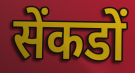
सेंकडों